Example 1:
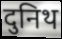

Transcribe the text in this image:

दुनिथ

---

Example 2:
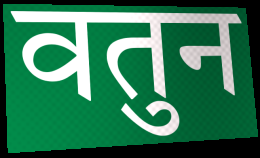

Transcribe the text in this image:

वतुन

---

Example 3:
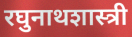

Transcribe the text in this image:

रघुनाथशास्त्री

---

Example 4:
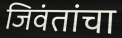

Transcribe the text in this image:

जिवंतांचा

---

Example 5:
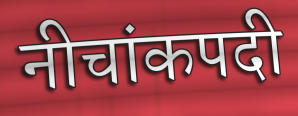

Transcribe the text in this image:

नीचांकपदी